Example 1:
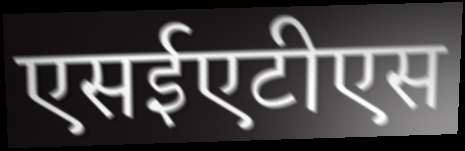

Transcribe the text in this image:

एसईएटीएस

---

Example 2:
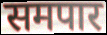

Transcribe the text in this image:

समपार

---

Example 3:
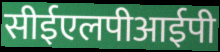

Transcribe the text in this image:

सीईएलपीआईपी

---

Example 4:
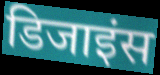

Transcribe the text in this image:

डिजाइंस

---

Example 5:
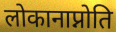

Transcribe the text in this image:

लोकानाप्नोति